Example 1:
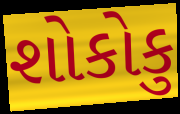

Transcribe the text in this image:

શોકોકુ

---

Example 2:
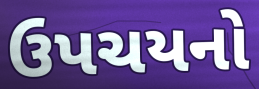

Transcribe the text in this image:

ઉપચયનો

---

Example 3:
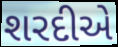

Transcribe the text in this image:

શરદીએ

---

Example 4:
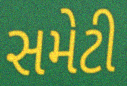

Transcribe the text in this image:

સમેટી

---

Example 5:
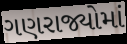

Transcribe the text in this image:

ગણરાજ્યોમાં